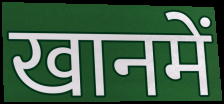
खानमें